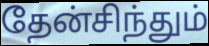
தேன்சிந்தும்